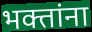
भक्तांना